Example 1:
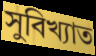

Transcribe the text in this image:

সুবিখ্যাত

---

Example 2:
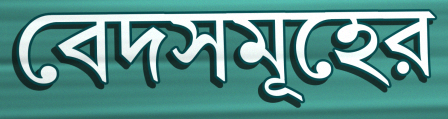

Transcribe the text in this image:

বেদসমূহের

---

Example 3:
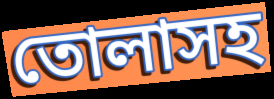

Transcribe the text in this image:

তোলাসহ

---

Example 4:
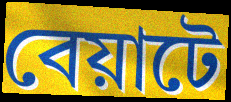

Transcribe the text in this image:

বেয়াটে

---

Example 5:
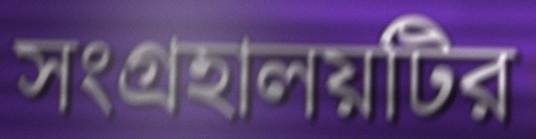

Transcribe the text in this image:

সংগ্রহালয়টির